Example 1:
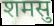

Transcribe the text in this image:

शमसु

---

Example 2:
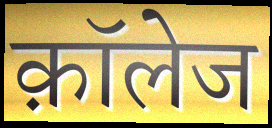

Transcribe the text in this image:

क़ॉलेज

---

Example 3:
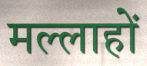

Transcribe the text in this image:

मल्लाहों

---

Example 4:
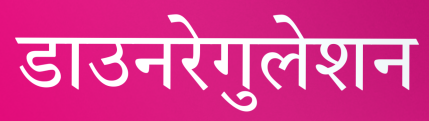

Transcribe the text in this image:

डाउनरेगुलेशन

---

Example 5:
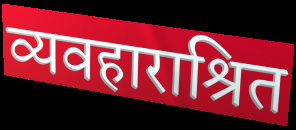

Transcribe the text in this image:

व्यवहाराश्रित